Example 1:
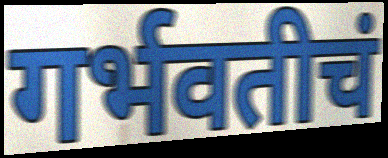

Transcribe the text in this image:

गर्भवतीचं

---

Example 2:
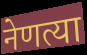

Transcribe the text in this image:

नेणत्या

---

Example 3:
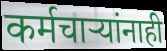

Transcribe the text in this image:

कर्मचाऱ्यांनाही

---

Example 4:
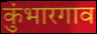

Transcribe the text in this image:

कुंभारगाव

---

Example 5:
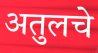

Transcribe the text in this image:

अतुलचे